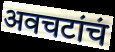
अवचटांचं